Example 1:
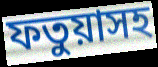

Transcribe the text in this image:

ফতুয়াসহ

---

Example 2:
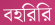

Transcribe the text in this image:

বহরিরি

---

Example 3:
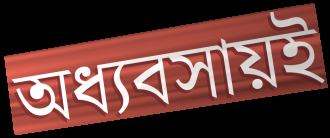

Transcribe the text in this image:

অধ্যবসায়ই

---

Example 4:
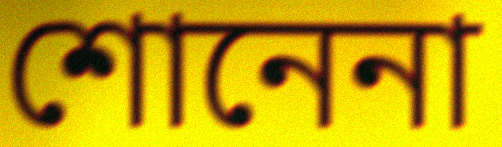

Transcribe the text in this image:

শোনেনা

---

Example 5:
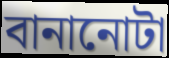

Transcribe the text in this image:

বানানোটা